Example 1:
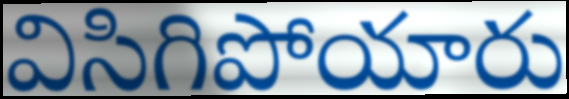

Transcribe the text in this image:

విసిగిపోయారు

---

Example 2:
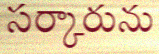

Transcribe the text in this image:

సర్కారును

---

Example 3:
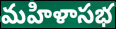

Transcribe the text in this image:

మహిళాసభ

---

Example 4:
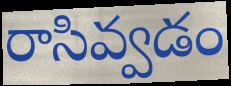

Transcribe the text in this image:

రాసివ్వడం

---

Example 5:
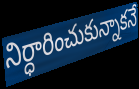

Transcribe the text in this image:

నిర్ధారించుకున్నాకనే